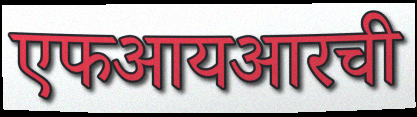
एफआयआरची